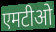
एमटीओ